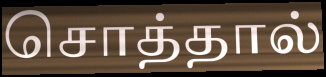
சொத்தால்